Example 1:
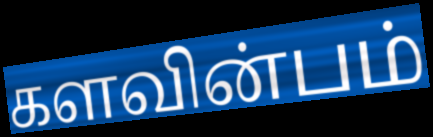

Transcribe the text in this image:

களவின்பம்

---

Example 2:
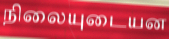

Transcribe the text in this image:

நிலையுடையன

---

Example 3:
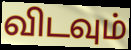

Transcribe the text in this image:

விடவும்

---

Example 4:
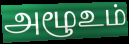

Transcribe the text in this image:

அழூஉம்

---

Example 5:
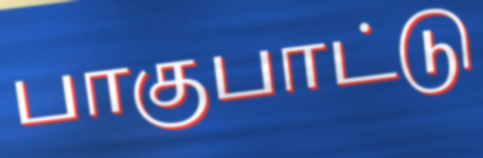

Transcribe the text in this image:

பாகுபாட்டு